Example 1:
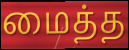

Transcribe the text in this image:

மைத்த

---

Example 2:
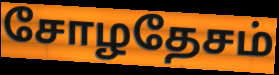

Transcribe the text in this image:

சோழதேசம்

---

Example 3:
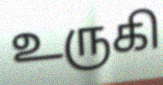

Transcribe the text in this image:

உருகி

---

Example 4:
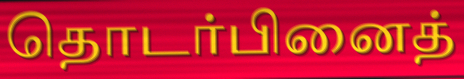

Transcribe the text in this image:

தொடர்பினைத்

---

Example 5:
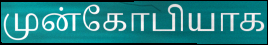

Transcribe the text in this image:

முன்கோபியாக